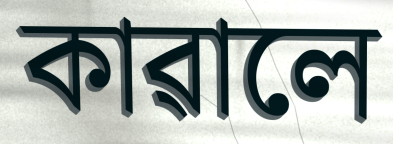
কাৱালে